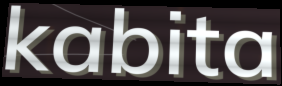
kabita